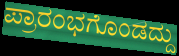
ಪ್ರಾರಂಭಗೊಂಡದ್ದು